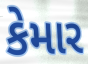
કેમાર